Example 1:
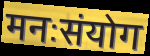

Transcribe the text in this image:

मनःसंयोग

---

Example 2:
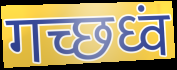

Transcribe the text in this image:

गच्छध्वं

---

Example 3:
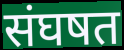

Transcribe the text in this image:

संघषत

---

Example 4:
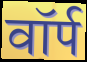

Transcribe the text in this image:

वॉर्प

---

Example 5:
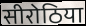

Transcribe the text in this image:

सीरोठिया